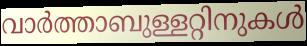
വാർത്താബുള്ളറ്റിനുകൾ